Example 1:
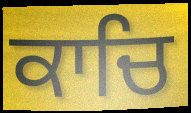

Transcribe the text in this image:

ਕਾਚਿ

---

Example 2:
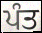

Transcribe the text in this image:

ਪੰਤ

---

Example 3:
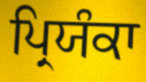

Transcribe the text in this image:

ਪ੍ਰਿਯੰਕਾ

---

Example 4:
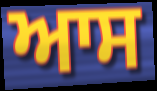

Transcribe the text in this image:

ਆਸ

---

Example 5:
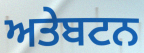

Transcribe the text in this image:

ਅਤੇਬਟਨ